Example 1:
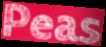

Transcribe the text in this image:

Peas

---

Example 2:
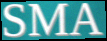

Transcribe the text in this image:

SMA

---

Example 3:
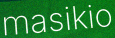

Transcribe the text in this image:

masikio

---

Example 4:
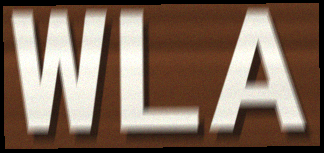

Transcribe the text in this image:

WLA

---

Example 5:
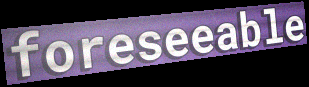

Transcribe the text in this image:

foreseeable